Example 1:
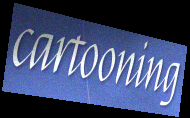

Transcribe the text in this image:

cartooning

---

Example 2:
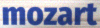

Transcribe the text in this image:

mozart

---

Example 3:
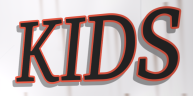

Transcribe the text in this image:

KIDS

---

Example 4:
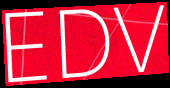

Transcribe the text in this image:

EDV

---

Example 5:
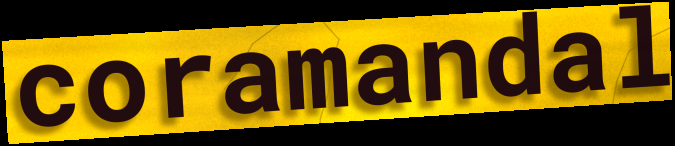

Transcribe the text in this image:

coramandal